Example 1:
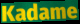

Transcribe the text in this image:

Kadame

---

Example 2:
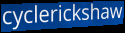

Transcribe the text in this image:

cyclerickshaw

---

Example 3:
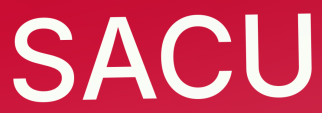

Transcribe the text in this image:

SACU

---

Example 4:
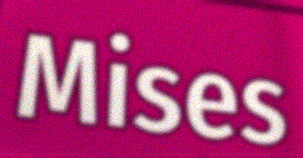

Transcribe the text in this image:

Mises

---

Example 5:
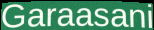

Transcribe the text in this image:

Garaasani